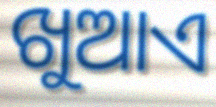
ଖୁଆଏ